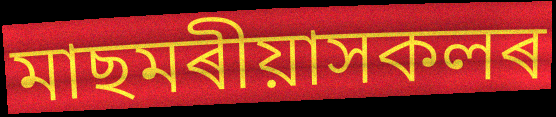
মাছমৰীয়াসকলৰ